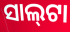
ସାଲ୍‌ଟା